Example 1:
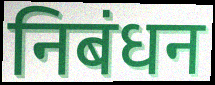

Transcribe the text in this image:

निबंधन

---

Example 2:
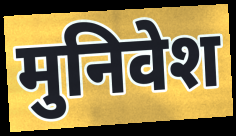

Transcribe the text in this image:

मुनिवेश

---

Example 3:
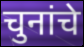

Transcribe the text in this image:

चुनांचे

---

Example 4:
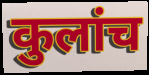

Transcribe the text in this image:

कुलांच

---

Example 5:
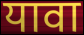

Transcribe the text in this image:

यावा